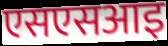
एसएसआइ